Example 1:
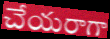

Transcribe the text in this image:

చేయరాగా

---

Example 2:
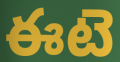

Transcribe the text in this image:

ఈటె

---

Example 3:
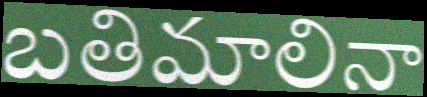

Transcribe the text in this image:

బతిమాలినా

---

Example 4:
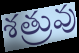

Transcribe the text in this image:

శత్రువు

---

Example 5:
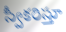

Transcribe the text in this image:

స్వీకరిస్తూ